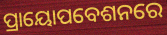
ପ୍ରାୟୋପବେଶନରେ